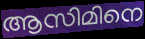
ആസിമിനെ